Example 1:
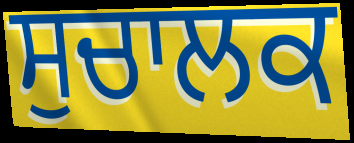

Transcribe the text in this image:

ਸੁਚਾਲਕ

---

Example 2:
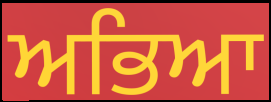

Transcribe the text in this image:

ਅਭਿਆ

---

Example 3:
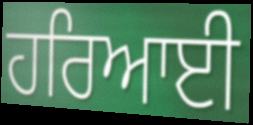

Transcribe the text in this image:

ਹਰਿਆਈ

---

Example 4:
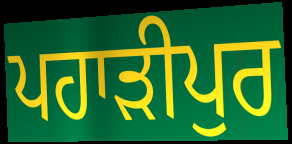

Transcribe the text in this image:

ਪਹਾੜੀਪੁਰ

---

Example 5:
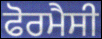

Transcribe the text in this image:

ਫੋਰਮੈਸੀ